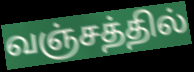
வஞ்சத்தில்